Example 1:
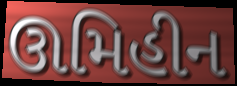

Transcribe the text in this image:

ઊમિહીન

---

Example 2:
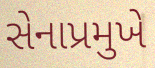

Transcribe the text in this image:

સેનાપ્રમુખે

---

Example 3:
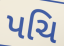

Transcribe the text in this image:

પચિ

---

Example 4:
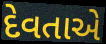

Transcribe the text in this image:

દેવતાએ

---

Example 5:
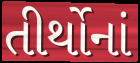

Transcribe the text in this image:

તીર્થોનાં